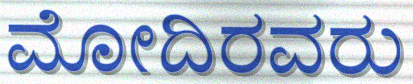
ಮೋದಿರವರು